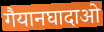
गैयानघादाओ